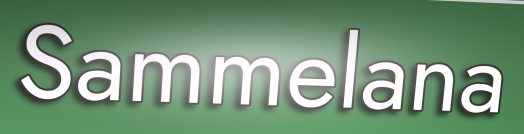
Sammelana